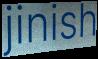
jinish